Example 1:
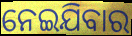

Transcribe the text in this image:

ନେଇଯିବାର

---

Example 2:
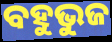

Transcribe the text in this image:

ବହୁଭୁଜ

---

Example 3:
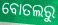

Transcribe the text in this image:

ବୋତଲରୁ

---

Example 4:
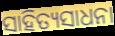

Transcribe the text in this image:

ସାହିତ୍ୟସାଧନା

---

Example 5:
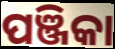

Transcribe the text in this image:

ପଞ୍ଜିକା